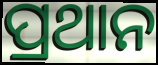
ପ୍ରଥାନ